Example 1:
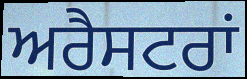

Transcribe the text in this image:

ਅਰੈਸਟਰਾਂ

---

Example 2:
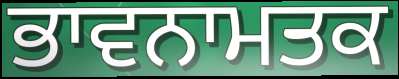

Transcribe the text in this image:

ਭਾਵਨਾਮਤਕ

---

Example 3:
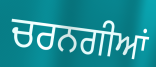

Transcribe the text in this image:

ਚਰਨਗੀਆਂ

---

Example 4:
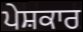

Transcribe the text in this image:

ਪੇਸ਼ਕਾਰ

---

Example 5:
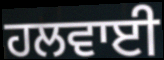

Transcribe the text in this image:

ਹਲਵਾਈ